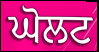
ਘੋਲਟ